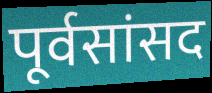
पूर्वसांसद